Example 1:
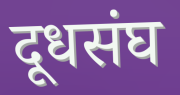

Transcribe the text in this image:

दूधसंघ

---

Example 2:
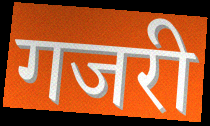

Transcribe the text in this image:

गजरी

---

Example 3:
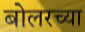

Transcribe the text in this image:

बोलरच्या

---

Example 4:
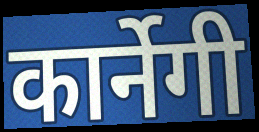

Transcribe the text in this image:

कार्नेगी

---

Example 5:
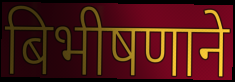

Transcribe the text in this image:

बिभीषणाने